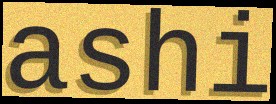
ashi